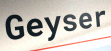
Geyser